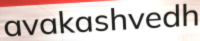
avakashvedh